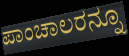
ಪಾಂಚಾಲರನ್ನೂ